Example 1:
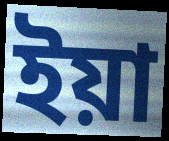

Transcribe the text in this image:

ইয়া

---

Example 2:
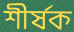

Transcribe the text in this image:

শীৰ্ষক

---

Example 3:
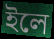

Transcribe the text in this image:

ইলে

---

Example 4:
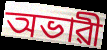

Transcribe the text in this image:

অভাৱী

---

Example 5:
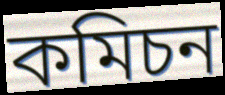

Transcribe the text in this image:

কমিচন